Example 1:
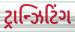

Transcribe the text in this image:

ટ્રાન્ઝિટિંગ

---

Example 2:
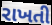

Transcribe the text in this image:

રાખતી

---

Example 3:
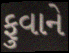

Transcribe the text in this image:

ફુવાને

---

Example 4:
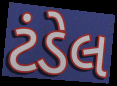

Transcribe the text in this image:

ટંડેલ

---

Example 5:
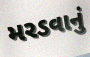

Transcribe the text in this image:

મરડવાનું